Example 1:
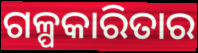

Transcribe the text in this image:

ଗଳ୍ପକାରିତାର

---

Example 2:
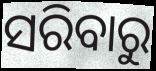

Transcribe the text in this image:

ସରିବାରୁ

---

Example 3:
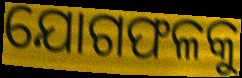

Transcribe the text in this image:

ଯୋଗଫଳକୁ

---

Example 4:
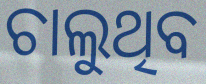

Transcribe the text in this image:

ଚାଲୁଥିବ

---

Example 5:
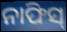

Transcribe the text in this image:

ନାଫିସ୍